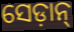
ସେଡ଼ାନ୍